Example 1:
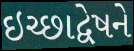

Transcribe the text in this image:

ઇચ્છાદ્વેષને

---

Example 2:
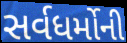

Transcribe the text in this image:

સર્વધર્મોની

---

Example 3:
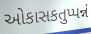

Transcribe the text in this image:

ઓકાસકતુપ્પન્નં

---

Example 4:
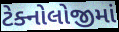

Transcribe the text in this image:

ટેક્નોલોજીમાં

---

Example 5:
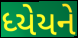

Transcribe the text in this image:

ધ્યેયને